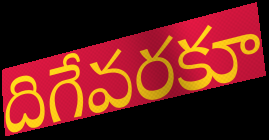
దిగేవరకూ